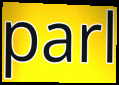
parl